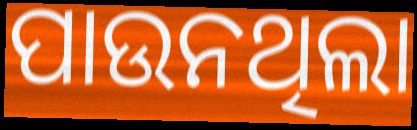
ପାଉନଥିଲା